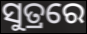
ସୁତ୍ରରେ